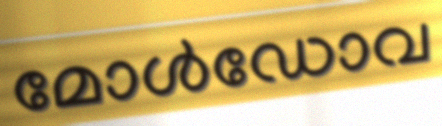
മോൾഡോവ